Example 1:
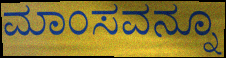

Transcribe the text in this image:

ಮಾಂಸವನ್ನೂ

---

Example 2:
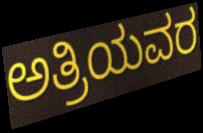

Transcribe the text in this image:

ಅತ್ರಿಯವರ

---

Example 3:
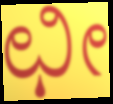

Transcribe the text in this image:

ಛೀ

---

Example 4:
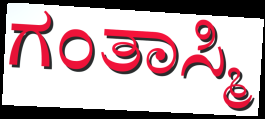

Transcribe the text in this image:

ಗಂತಾಸ್ಮಿ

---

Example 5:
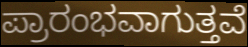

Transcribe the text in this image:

ಪ್ರಾರಂಭವಾಗುತ್ತವೆ